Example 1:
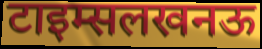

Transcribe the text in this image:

टाइम्सलखनऊ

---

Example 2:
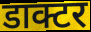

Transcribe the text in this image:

डाक्टर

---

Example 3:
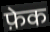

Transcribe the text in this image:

फ़ेक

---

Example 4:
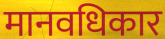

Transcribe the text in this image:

मानवधिकार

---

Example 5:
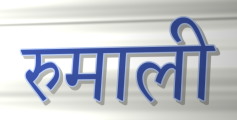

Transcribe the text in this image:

रुमाली